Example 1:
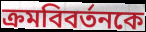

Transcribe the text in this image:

ক্রমবিবর্তনকে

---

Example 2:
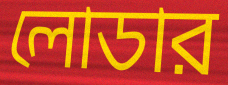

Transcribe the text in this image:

লোডার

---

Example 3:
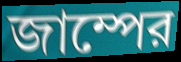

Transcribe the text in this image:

জাম্পের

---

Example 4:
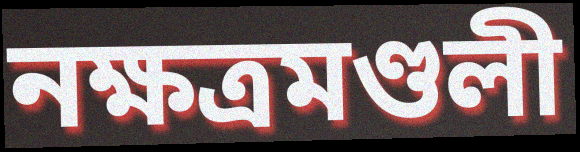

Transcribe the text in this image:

নক্ষত্রমণ্ডলী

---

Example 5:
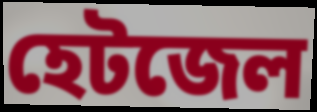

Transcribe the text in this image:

হেটজেল